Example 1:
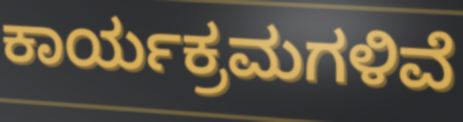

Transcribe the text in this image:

ಕಾರ್ಯಕ್ರಮಗಳಿವೆ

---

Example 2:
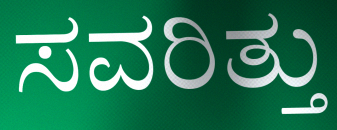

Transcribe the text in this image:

ಸವರಿತ್ತು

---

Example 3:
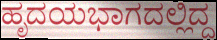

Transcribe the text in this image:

ಹೃದಯಭಾಗದಲ್ಲಿದ್ದ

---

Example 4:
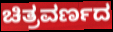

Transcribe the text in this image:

ಚಿತ್ರವರ್ಣದ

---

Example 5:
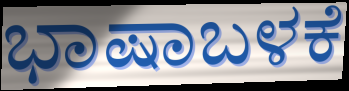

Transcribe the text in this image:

ಭಾಷಾಬಳಕೆ